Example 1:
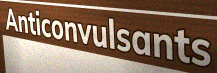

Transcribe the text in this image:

Anticonvulsants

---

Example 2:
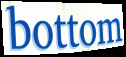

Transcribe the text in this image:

bottom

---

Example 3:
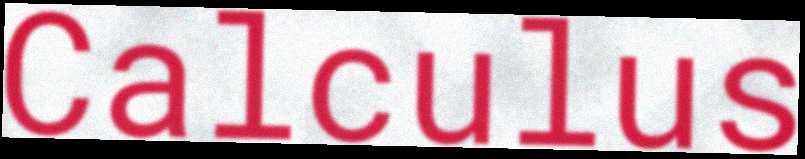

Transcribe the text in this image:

Calculus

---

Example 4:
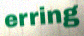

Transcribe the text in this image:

erring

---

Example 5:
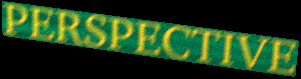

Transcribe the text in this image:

PERSPECTIVE